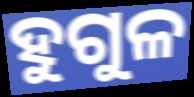
ହୁଗୁଳ